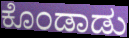
ಕೊಂಡಾಡು